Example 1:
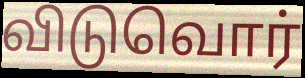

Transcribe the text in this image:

விடுவொர்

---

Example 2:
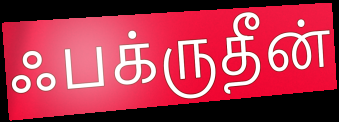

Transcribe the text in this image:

ஃபக்ருதீன்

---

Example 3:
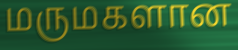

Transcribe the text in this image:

மருமகளான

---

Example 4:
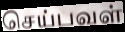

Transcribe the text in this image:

செய்பவள்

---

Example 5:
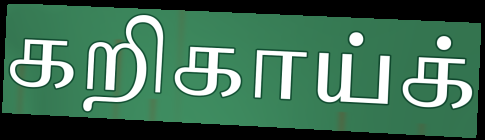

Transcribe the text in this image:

கறிகாய்க்